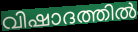
വിഷാദത്തിൽ